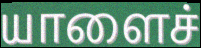
யாளைச்